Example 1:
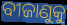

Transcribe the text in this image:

ବୀଜାଣୁକୁ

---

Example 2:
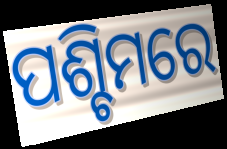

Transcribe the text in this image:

ପଶ୍ଚିମରେ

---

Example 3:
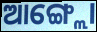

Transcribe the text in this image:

ଆଙ୍ଗ୍ଲୋ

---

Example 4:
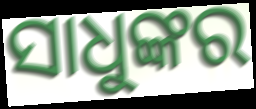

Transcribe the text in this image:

ସାଧୁଙ୍କର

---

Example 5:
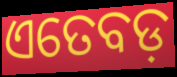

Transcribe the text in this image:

ଏତେବଡ଼